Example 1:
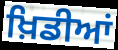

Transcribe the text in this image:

ਖ਼ਿਡੀਆਂ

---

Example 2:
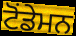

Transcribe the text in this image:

ਟੋਂਡੇਮਨ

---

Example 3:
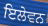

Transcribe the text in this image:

ਇਲੇਵਨ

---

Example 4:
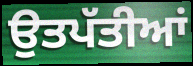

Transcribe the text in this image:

ਉਤਪੱਤੀਆਂ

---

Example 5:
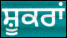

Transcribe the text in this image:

ਸ਼ੂਕਰਾਂ